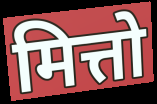
मित्तो